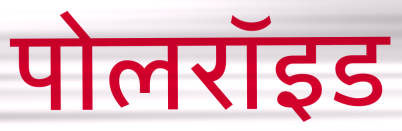
पोलरॉइड